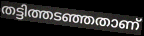
തട്ടിത്തടഞ്ഞതാണ്